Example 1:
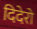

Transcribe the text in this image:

दिदेरो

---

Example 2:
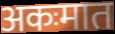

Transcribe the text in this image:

अकःमात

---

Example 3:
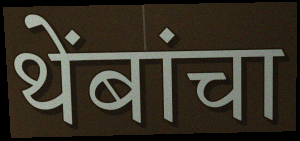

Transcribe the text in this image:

थेंबांचा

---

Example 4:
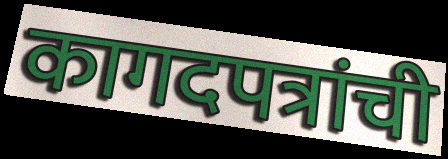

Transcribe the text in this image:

कागदपत्रांची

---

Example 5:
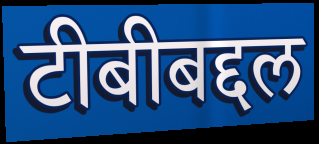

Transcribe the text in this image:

टीबीबद्दल